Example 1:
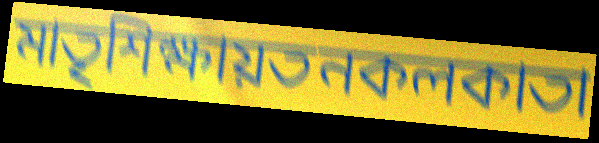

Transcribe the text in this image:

মাতৃশিক্ষায়তনকলকাতা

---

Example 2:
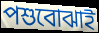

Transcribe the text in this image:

পশুবোঝাই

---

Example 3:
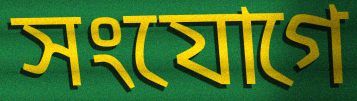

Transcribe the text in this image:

সংযোগে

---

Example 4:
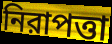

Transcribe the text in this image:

নিরাপত্তা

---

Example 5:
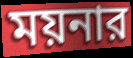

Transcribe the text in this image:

ময়নার